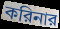
করিনার